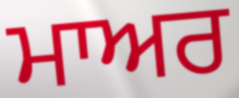
ਮਾਅਰ